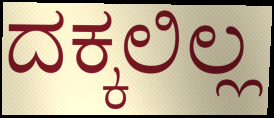
ದಕ್ಕಲಿಲ್ಲ